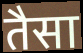
तैसा